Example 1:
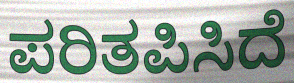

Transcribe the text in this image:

ಪರಿತಪಿಸಿದೆ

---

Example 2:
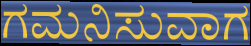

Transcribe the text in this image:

ಗಮನಿಸುವಾಗ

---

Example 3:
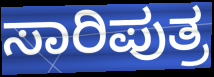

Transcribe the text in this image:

ಸಾರಿಪುತ್ರ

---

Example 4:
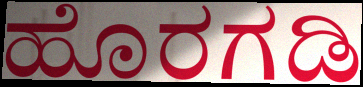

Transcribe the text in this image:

ಹೊರಗಡಿ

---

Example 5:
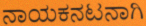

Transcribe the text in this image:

ನಾಯಕನಟನಾಗಿ